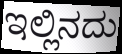
ಇಲ್ಲಿನದು